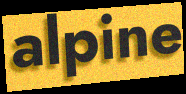
alpine